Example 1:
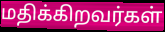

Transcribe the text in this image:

மதிக்கிறவர்கள்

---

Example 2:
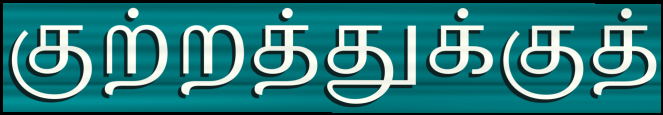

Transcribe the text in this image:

குற்றத்துக்குத்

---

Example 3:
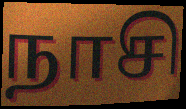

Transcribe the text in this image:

நாசி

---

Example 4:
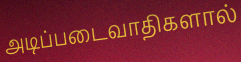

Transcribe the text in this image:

அடிப்படைவாதிகளால்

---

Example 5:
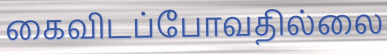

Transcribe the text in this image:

கைவிடப்போவதில்லை